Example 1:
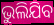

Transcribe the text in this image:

ଭୁଲିଯିବ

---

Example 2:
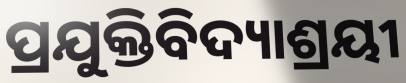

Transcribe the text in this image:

ପ୍ରଯୁକ୍ତିବିଦ୍ୟାଶ୍ରୟୀ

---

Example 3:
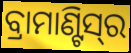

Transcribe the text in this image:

ବ୍ରାମାଣ୍ଟିସ୍‌ର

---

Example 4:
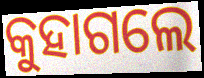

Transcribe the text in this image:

କୁହାଗଲେ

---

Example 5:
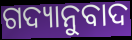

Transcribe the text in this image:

ଗଦ୍ୟାନୁବାଦ